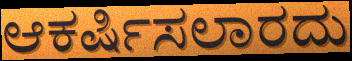
ಆಕರ್ಷಿಸಲಾರದು